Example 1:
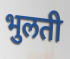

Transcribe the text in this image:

भुलती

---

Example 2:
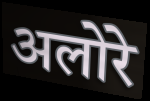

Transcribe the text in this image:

अलोरे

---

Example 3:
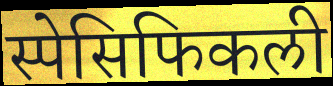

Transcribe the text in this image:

स्पेसिफिकली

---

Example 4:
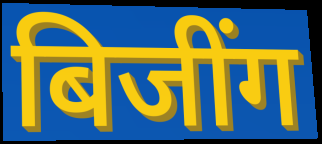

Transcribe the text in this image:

बिजींग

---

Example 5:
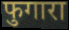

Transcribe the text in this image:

फुगारा